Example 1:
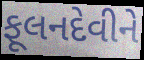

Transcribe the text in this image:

ફૂલનદેવીને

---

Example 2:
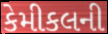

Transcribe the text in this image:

કેમીકલની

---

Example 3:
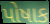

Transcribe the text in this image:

પોષાક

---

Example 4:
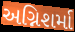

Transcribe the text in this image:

અગ્નિશર્મા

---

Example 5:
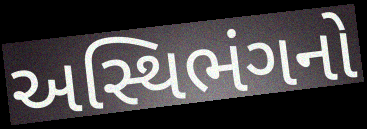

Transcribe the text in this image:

અસ્થિભંગનો